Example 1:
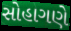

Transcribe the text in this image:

સોહાગણે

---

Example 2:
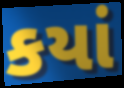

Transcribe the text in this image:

કયાં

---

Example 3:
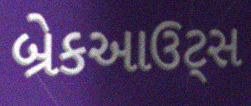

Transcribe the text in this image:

બ્રેકઆઉટ્સ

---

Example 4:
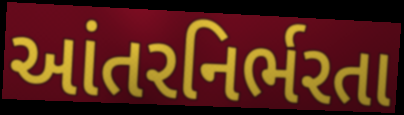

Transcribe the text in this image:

આંતરનિર્ભરતા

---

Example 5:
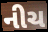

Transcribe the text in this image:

નીચ